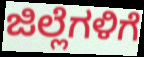
ಜಿಲ್ಲೆಗಳಿಗೆ